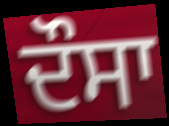
ਦੌਸਾ